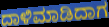
ದಾಳಿಮಾಡಿದಾಗ